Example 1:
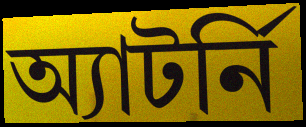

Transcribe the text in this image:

অ্যাটর্নি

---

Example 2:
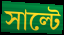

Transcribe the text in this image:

সাল্টে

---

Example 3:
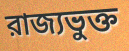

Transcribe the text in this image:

রাজ্যভুক্ত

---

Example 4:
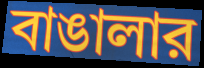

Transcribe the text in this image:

বাঙালার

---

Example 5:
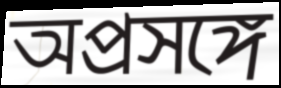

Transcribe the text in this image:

অপ্রসঙ্গে